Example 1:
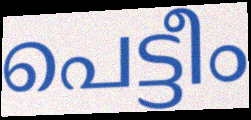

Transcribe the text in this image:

പെട്ടീം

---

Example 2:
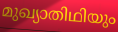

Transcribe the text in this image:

മുഖ്യാതിഥിയും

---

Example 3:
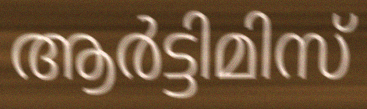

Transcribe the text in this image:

ആർട്ടിമിസ്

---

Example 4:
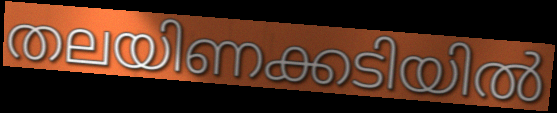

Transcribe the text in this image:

തലയിണക്കടിയിൽ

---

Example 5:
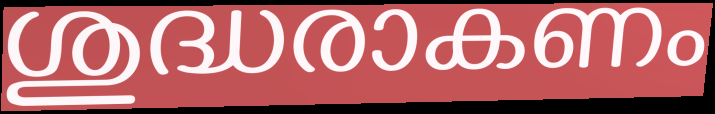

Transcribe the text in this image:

ശുദ്ധരാകണം